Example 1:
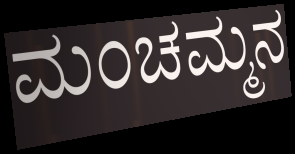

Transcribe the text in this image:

ಮಂಚಮ್ಮನ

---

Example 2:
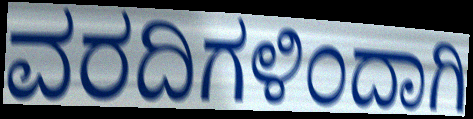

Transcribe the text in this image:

ವರದಿಗಳಿಂದಾಗಿ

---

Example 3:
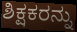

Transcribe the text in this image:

ಶಿಕ್ಷಕರನ್ನು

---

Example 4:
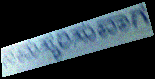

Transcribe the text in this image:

ನಮಸ್ಕರಿಸುವಾಗ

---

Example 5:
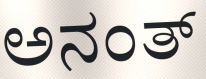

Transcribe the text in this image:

ಅನಂತ್